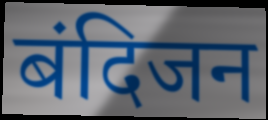
बंदिजन